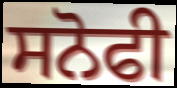
ਸਨੋਫੀ